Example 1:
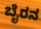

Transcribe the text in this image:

ಬೈರನ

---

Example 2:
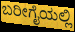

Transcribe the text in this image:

ಬರೀಗೈಯಲ್ಲಿ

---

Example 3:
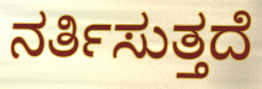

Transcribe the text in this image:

ನರ್ತಿಸುತ್ತದೆ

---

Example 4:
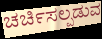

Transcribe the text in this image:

ಚರ್ಚಿಸಲ್ಪಡುವ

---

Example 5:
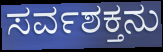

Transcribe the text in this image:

ಸರ್ವಶಕ್ತನು